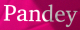
Pandey